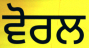
ਵੋਰਲ